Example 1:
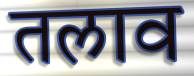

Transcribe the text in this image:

तलाव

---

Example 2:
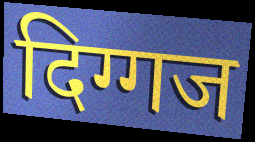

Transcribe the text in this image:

दिग्गज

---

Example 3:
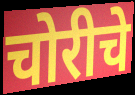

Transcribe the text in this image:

चोरीचे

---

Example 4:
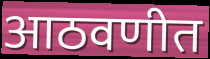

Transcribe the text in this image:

आठवणीत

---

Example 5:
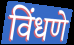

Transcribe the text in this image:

विंधणे